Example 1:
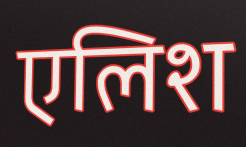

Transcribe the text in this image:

एलिश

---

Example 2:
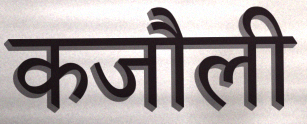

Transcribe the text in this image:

कजौली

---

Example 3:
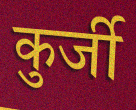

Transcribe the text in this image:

कुर्जी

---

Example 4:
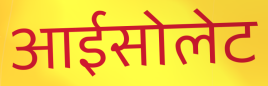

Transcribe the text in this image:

आईसोलेट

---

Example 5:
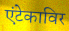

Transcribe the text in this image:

एंटेकाविर